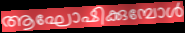
ആഘോഷിക്കുമ്പോൾ